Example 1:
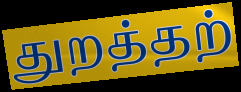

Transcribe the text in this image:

துறத்தற்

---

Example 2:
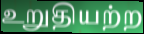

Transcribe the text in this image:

உறுதியற்ற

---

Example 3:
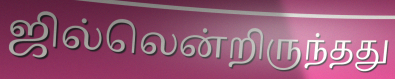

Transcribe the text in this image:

ஜில்லென்றிருந்தது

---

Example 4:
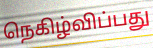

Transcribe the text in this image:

நெகிழ்விப்பது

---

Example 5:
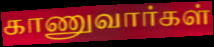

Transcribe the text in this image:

காணுவார்கள்